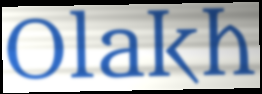
Olakh